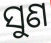
ସୁଣ